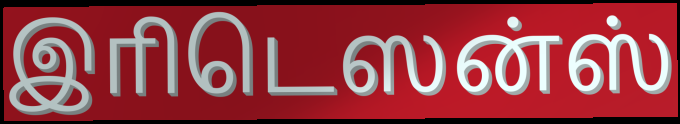
இரிடெஸன்ஸ்